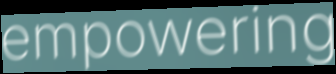
empowering